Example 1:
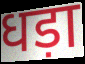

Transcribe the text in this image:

धड़ा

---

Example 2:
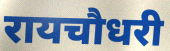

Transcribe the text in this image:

रायचौधरी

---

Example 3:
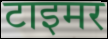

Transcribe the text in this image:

टाइमर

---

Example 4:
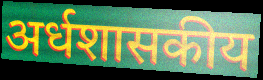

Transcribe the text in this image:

अर्धशासकीय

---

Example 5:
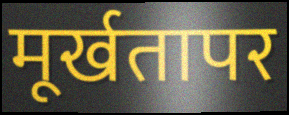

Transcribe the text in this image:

मूर्खतापर